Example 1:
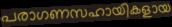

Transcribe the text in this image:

പരാഗണസഹായികളായ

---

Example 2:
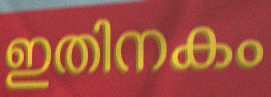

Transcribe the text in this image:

ഇതിനകം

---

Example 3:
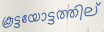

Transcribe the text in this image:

കൂട്ടയോട്ടത്തില്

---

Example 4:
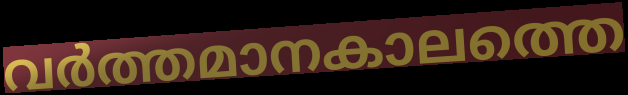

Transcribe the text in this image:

വർത്തമാനകാലത്തെ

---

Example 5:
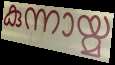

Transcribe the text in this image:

കുന്നായ്മ